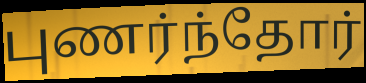
புணர்ந்தோர்